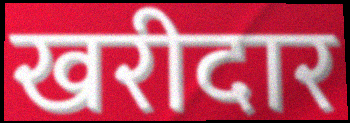
खरीदार